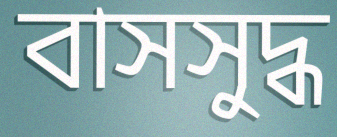
বাসসুদ্ধ